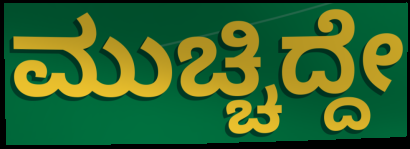
ಮುಚ್ಚಿದ್ದೇ